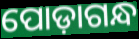
ପୋଡ଼ାଗନ୍ଧ